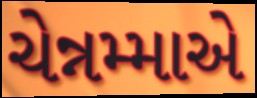
ચેન્નમ્માએ